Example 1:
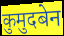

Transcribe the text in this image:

कुमुदबेन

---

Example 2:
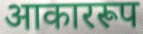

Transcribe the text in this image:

आकाररूप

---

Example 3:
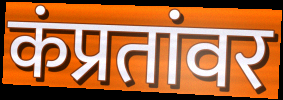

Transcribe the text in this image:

कंप्रतांवर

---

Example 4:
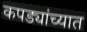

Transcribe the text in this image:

कपड्यांच्यात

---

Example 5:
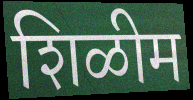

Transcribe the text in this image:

शिळीम